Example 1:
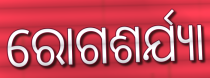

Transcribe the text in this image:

ରୋଗଶର୍ଯ୍ୟା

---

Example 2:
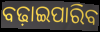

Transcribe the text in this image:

ବଢ଼ାଇପାରିବ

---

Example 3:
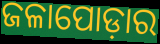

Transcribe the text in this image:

ଜଳାପୋଡ଼ାର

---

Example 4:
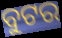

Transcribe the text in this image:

ବୁଟର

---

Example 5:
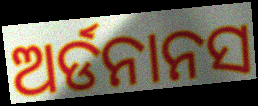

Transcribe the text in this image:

ଅର୍ଡନାନସ